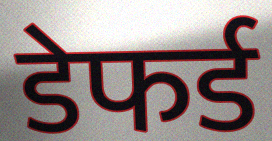
डेफर्ड